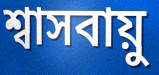
শ্বাসবায়ু